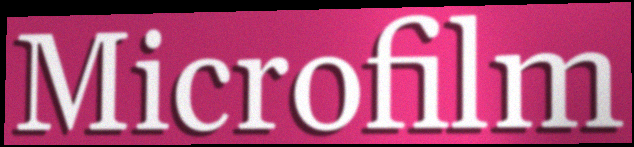
Microfilm